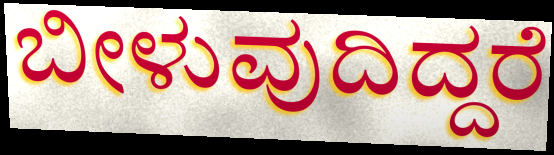
ಬೀಳುವುದಿದ್ದರೆ